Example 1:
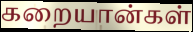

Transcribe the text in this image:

கறையான்கள்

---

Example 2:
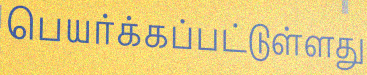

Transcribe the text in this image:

பெயர்க்கப்பட்டுள்ளது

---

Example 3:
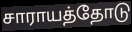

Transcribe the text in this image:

சாராயத்தோடு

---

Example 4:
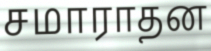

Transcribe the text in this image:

சமாராதன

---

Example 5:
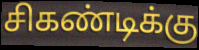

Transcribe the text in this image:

சிகண்டிக்கு